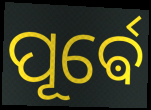
ପୂର୍ଵେ